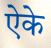
ऐके